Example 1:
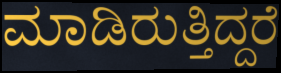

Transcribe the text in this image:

ಮಾಡಿರುತ್ತಿದ್ದರೆ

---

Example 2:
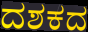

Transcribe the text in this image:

ದಶಕದ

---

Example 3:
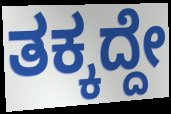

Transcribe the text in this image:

ತಕ್ಕದ್ದೇ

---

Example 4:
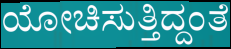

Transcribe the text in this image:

ಯೋಚಿಸುತ್ತಿದ್ದಂತೆ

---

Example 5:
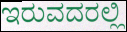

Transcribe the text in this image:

ಇರುವದರಲ್ಲಿ